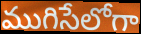
ముగిసేలోగా